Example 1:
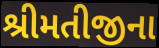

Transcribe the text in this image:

શ્રીમતીજીના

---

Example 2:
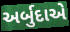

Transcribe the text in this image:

અર્બુદાએ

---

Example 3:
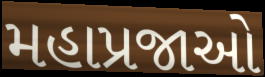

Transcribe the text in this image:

મહાપ્રજાઓ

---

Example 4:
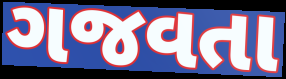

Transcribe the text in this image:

ગજવતા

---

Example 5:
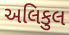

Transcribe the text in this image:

અલિકુલ